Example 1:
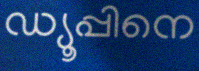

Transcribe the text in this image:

ഡ്യൂപ്പിനെ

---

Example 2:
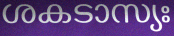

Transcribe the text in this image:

ശകടാസ്യഃ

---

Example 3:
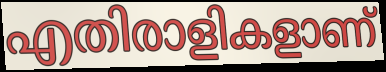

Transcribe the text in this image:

എതിരാളികളാണ്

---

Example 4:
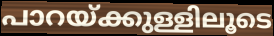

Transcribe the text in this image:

പാറയ്ക്കുള്ളിലൂടെ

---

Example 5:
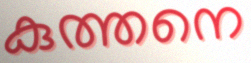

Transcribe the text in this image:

കുത്തനെ